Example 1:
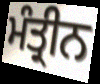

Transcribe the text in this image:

ਮੰਤ੍ਰੀਨ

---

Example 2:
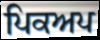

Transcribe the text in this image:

ਪਿਕਅਪ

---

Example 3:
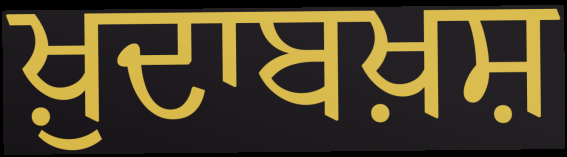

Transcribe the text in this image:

ਖ਼ੁਦਾਬਖ਼ਸ਼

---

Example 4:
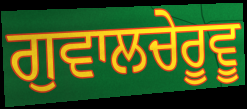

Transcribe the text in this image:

ਗੁਵਾਲਚੇਰੂਵੂ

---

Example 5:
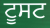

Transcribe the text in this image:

ਟੂਸਟ